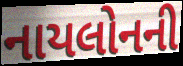
નાયલોનની